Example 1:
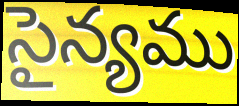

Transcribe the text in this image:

సైన్యము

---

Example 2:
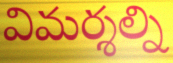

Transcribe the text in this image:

విమర్శల్ని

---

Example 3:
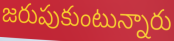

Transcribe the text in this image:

జరుపుకుంటున్నారు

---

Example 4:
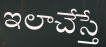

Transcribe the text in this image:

ఇలాచేస్తే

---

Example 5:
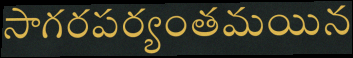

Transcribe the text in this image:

సాగరపర్యంతమయిన